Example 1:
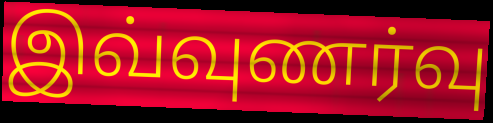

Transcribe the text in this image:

இவ்வுணர்வு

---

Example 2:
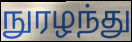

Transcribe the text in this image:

நுரழந்து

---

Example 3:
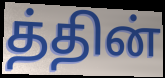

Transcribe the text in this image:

த்தின்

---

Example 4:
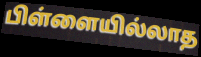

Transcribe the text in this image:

பிள்ளையில்லாத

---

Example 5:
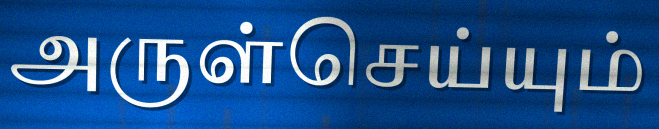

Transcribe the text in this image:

அருள்செய்யும்